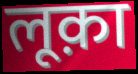
लूक़ा